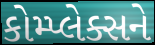
કોમ્પ્લેક્સને